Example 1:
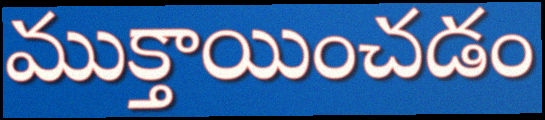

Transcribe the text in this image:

ముక్తాయించడం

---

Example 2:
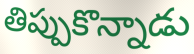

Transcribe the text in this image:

తిప్పుకొన్నాడు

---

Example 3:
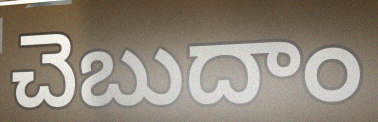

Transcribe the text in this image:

చెబుదాం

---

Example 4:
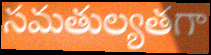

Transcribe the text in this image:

సమతుల్యతగా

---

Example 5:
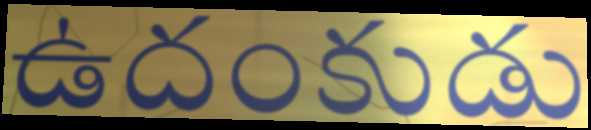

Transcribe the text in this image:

ఉదంకుడు